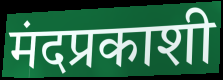
मंदप्रकाशी